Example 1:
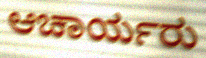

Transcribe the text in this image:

ಆಚಾರ್ಯರು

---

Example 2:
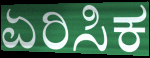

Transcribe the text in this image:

ಏರಿಸಿಕ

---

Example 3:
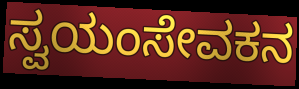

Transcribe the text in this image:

ಸ್ವಯಂಸೇವಕನ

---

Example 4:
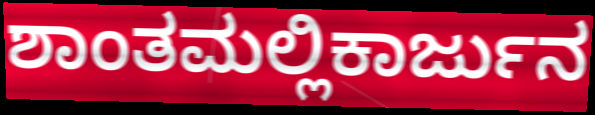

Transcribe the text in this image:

ಶಾಂತಮಲ್ಲಿಕಾರ್ಜುನ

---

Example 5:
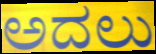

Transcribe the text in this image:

ಅದಲು